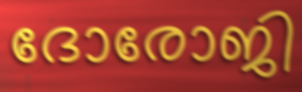
ദോരോജി